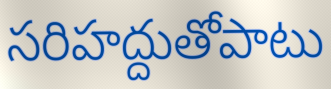
సరిహద్దుతోపాటు